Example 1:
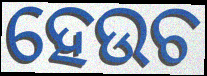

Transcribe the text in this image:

ହେଉଚ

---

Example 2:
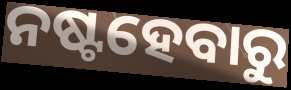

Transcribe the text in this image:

ନଷ୍ଟହେବାରୁ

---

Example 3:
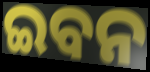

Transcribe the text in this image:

ଇବନ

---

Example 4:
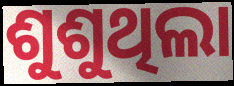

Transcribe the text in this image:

ଶୁଶୁଥିଲା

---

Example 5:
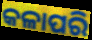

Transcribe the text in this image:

କଳାପରି